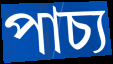
পাচ্য